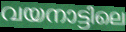
വയനാട്ടിലെ